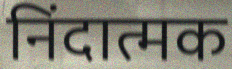
निंदात्मक